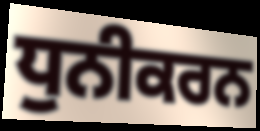
ਧੁਨੀਕਰਨ